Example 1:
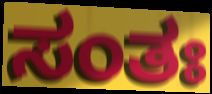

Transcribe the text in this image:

ಸಂತಃ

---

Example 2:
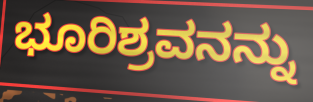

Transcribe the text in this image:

ಭೂರಿಶ್ರವನನ್ನು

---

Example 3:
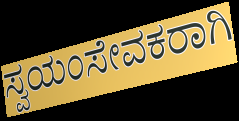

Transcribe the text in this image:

ಸ್ವಯಂಸೇವಕರಾಗಿ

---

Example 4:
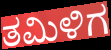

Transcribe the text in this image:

ತಮಿಳಿಗ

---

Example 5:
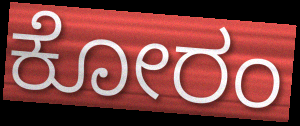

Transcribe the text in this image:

ಕೋರಂ